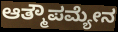
ಆತ್ಮೌಪಮ್ಯೇನ